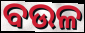
ବଉଳ